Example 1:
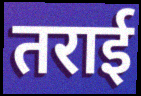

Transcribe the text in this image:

तराई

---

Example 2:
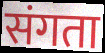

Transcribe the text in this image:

संगता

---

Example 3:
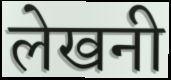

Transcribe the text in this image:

लेखनी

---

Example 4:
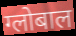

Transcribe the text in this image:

ग्लोबाल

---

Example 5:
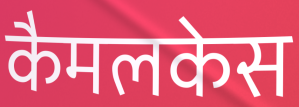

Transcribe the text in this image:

कैमलकेस